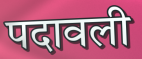
पदावली